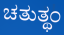
ಚತುತ್ಥಂ